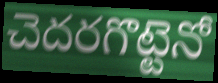
చెదరగొట్టెనో